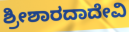
ಶ್ರೀಶಾರದಾದೇವಿ